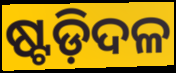
ଷ୍ଟଡ଼ିଦଳ